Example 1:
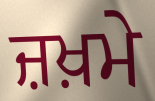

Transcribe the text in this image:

ਜ਼ਖ਼ਮੇ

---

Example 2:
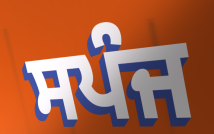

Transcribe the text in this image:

ਸਪੰਜ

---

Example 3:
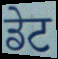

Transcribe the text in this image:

ਡੇਟ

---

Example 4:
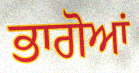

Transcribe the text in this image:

ਭਾਗੋਆਂ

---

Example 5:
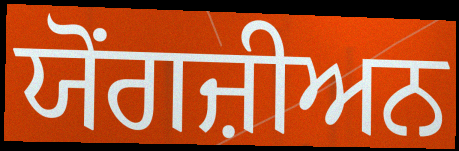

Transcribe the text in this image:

ਯੋਂਗਜ਼ੀਅਨ